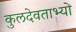
कुलदेवताभ्यो